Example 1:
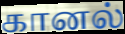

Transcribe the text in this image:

கானல்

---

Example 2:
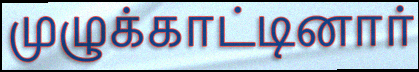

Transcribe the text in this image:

முழுக்காட்டினார்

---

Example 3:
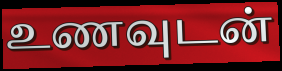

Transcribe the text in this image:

உணவுடன்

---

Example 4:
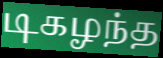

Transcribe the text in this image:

டிகழந்த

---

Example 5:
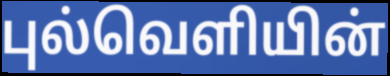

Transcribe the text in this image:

புல்வெளியின்